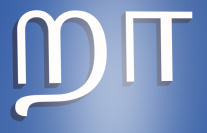
றா